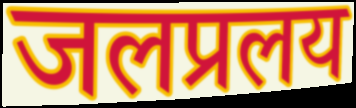
जलप्रलय